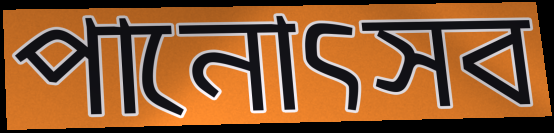
পানোৎসব